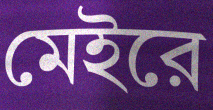
মেইরে